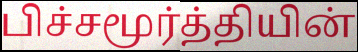
பிச்சமூர்த்தியின்